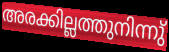
അരക്കില്ലത്തുനിന്നു്